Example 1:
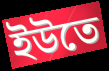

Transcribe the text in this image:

ইউতে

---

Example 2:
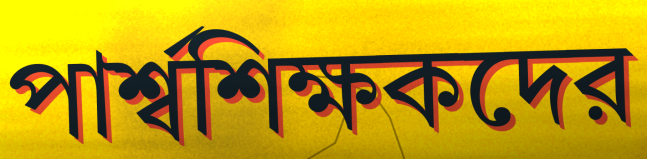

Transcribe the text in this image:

পার্শ্বশিক্ষকদের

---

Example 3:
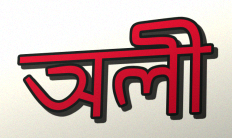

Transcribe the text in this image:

অলী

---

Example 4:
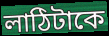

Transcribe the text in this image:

লাঠিটাকে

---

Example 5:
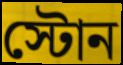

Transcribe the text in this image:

স্টোন